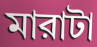
মারাটা